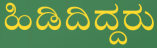
ಹಿಡಿದಿದ್ದರು